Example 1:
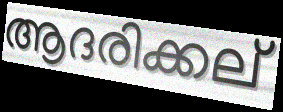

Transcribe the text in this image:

ആദരിക്കല്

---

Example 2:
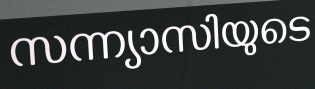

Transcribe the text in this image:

സന്ന്യാസിയുടെ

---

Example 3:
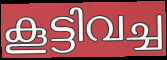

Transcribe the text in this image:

കൂട്ടിവച്ച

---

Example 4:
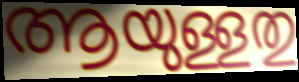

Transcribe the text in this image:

ആയുള്ളതു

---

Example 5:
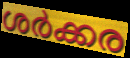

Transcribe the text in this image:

ശർക്കര